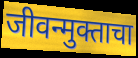
जीवन्मुक्ताचा